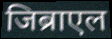
जिब्राएल